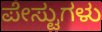
ಪೇಸ್ಟುಗಳು